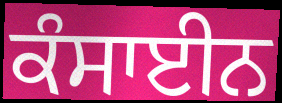
ਕੰਸਾਈਨ